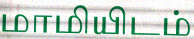
மாமியிடம்